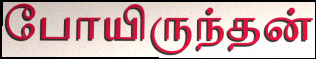
போயிருந்தன்